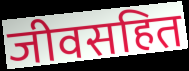
जीवसहित